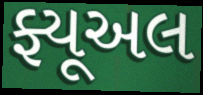
ફ્યૂઅલ